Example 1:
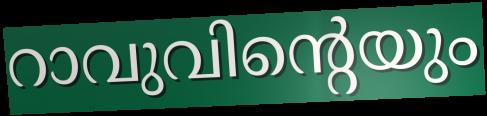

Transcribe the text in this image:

റാവുവിന്റെയും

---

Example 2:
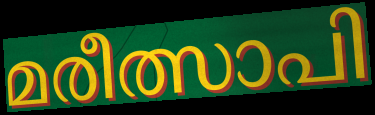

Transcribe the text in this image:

മരീത്സാപി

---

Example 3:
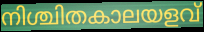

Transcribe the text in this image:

നിശ്ചിതകാലയളവ്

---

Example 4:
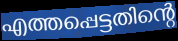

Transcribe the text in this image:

എത്തപ്പെട്ടതിന്റെ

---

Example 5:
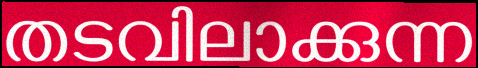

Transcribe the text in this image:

തടവിലാക്കുന്ന